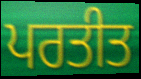
ਪਰਤੀਤ